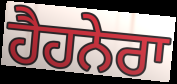
ਹੈਹਨੇਰਾ